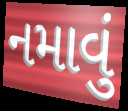
નમાવું